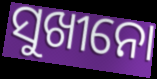
ସୁଖୀନୋ